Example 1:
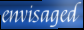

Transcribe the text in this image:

envisaged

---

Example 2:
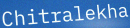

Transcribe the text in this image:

Chitralekha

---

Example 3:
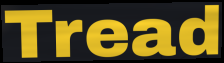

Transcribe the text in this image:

Tread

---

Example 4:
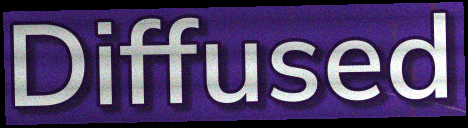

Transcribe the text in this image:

Diffused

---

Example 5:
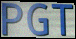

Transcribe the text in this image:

PGT